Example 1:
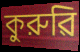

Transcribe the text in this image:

কুৰুৱি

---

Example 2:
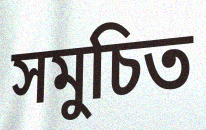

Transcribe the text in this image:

সমুচিত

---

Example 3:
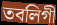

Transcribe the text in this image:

তবলিগী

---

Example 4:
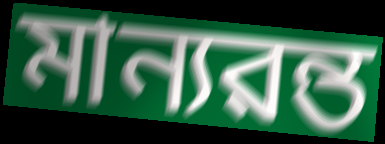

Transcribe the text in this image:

মান্যৱন্ত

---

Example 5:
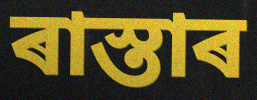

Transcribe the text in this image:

ৰাস্তাৰ